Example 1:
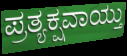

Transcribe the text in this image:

ಪ್ರತ್ಯಕ್ಷವಾಯ್ತು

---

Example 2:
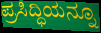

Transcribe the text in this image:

ಪ್ರಸಿದ್ಧಿಯನ್ನೂ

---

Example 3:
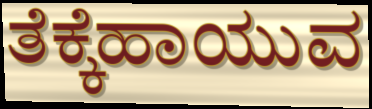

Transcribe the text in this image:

ತೆಕ್ಕೆಹಾಯುವ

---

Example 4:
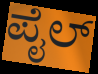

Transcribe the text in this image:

ಪೈಲ್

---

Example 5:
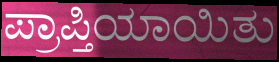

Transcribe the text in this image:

ಪ್ರಾಪ್ತಿಯಾಯಿತು